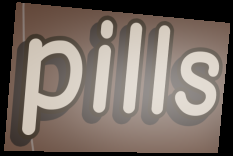
pills